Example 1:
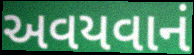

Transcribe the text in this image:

અવયવાનં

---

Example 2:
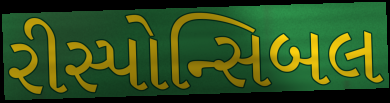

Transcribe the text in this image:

રીસ્પોન્સિબલ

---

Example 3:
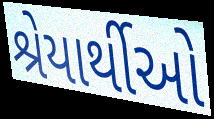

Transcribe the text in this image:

શ્રેયાર્થીઓ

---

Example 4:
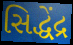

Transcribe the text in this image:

સિદ્ધેંદ્ર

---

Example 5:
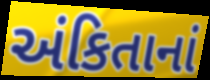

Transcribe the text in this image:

અંકિતાનાં